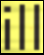
ill